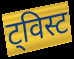
ट्विस्ट